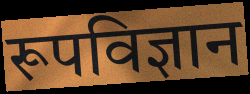
रूपविज्ञान